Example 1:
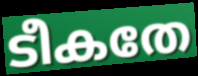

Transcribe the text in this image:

ടീകതേ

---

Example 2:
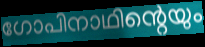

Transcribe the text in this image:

ഗോപിനാഥിന്റെയും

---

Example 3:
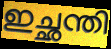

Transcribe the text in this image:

ഇച്ഛന്തി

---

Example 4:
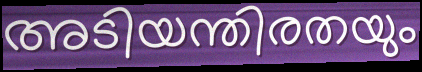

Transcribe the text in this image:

അടിയന്തിരതയും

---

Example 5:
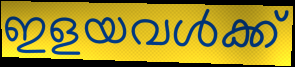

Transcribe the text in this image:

ഇളയവൾക്ക്